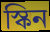
স্কিন